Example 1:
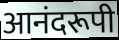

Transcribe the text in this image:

आनंदरूपी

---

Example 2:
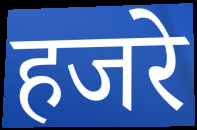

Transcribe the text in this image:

हजरे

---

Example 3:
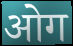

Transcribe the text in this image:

ओग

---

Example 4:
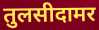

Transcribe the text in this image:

तुलसीदामर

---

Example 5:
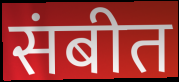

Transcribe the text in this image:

संबीत